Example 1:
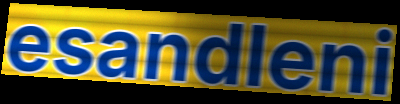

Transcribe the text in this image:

esandleni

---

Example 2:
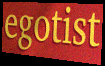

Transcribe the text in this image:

egotist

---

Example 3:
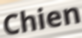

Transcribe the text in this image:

Chien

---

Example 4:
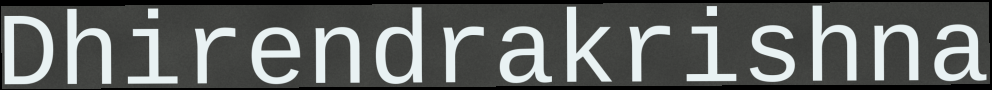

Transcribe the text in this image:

Dhirendrakrishna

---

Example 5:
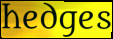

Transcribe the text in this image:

hedges